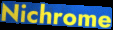
Nichrome